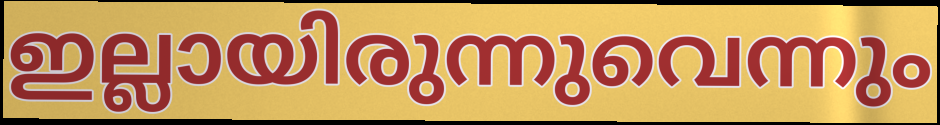
ഇല്ലായിരുന്നുവെന്നും